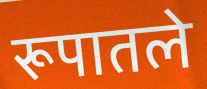
रूपातले